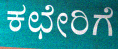
ಕಛೇರಿಗೆ